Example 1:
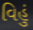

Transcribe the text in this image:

વિહું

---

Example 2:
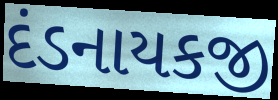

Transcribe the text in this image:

દંડનાયકજી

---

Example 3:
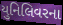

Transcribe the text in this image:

યુનિલિવરના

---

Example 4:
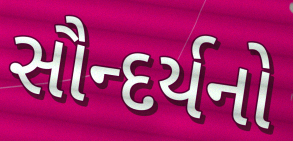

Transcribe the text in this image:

સૌન્દર્યનો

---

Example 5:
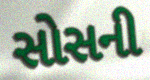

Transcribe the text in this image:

સોસની